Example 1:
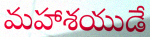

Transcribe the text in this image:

మహాశయుడే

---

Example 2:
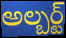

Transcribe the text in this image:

అల్బర్ట్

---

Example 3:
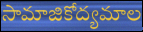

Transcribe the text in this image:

సామాజికోద్యమాల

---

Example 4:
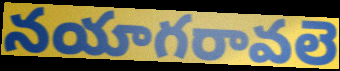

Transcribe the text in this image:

నయాగరావలె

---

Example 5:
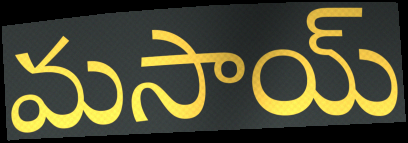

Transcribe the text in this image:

మసాయ్